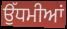
ਉੱਧਮੀਆਂ